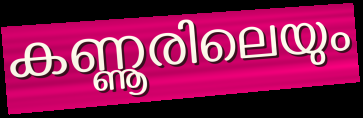
കണ്ണൂരിലെയും